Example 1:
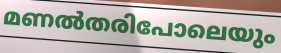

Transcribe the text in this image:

മണൽതരിപോലെയും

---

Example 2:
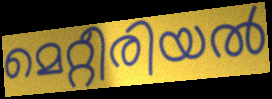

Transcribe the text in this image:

മെറ്റീരിയൽ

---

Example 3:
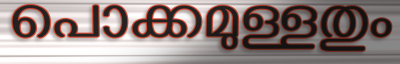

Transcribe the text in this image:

പൊക്കമുള്ളതും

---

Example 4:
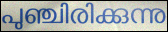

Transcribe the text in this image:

പുഞ്ചിരിക്കുന്നു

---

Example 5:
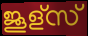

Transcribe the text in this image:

ജൂള്സ്